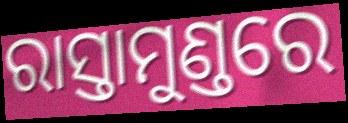
ରାସ୍ତାମୁଣ୍ଡରେ